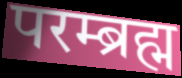
परम्ब्रह्म